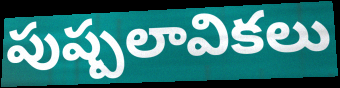
పుష్పలావికలు